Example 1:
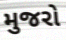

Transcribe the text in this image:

મુજરો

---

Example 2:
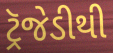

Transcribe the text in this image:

ટ્રૅજેડીથી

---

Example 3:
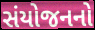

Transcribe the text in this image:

સંયોજનનો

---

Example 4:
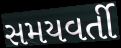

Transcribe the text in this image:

સમયવર્તી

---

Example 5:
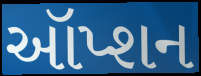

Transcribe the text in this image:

ઑપ્શન